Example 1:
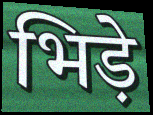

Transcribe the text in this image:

भिड़े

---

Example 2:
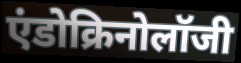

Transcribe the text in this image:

एंडोक्रिनोलॉजी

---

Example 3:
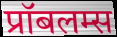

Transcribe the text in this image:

प्रॉबलम्स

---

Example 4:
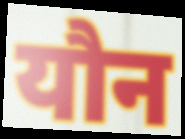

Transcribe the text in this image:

यौन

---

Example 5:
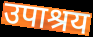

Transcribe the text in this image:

उपाश्रय